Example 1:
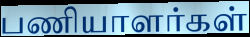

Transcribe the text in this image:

பணியாளர்கள்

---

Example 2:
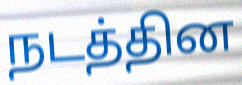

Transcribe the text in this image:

நடத்தின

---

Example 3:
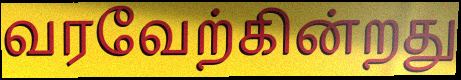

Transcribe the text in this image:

வரவேற்கின்றது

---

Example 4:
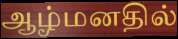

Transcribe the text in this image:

ஆழ்மனதில்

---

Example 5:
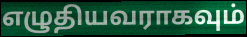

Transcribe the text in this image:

எழுதியவராகவும்